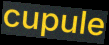
cupule